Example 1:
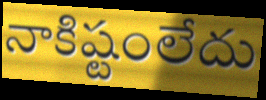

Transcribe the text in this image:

నాకిష్టంలేదు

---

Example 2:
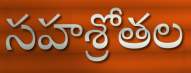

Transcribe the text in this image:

సహశ్రోతల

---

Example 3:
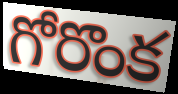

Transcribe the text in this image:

గోరొంక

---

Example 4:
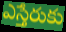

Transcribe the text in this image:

ఎస్తేరుకు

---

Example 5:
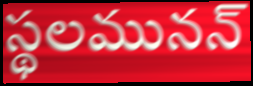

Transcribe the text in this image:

స్థలమునన్